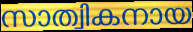
സാത്വികനായ